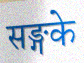
सङ्गके